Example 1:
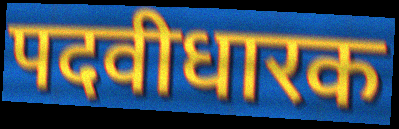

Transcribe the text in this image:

पदवीधारक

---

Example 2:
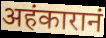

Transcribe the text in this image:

अहंकारानं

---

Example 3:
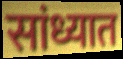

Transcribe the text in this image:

सांध्यात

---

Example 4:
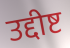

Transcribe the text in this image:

उद्दीष्ट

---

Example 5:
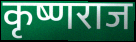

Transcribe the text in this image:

कृष्णराज